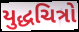
યુદ્ધચિત્રો